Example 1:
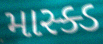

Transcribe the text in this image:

માસ્ક્ડ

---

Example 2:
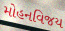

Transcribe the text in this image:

મોહનવિજય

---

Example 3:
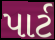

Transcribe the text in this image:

પાર્ટ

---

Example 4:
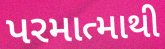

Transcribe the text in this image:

પરમાત્માથી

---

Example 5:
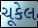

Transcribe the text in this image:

ચૂકેલ